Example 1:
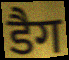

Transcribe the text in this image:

डैग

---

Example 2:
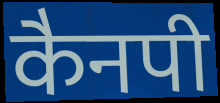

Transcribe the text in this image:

कैनपी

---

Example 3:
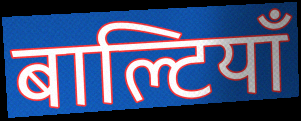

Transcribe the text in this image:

बाल्टियाँ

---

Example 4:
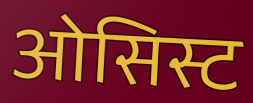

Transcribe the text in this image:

ओसिस्ट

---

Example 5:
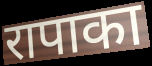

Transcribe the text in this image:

रापाका